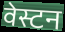
वेस्टन